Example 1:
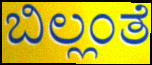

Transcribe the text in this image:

ಬಿಲ್ಲಂತೆ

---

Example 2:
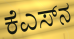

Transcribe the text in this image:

ಕೆಎಸ್‌ನ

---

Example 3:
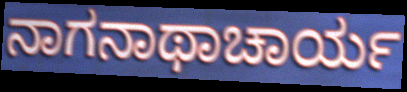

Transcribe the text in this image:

ನಾಗನಾಥಾಚಾರ್ಯ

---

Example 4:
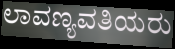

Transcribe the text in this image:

ಲಾವಣ್ಯವತಿಯರು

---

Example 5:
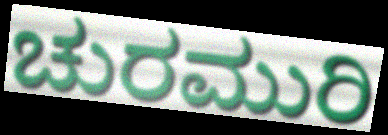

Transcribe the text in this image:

ಚುರಮುರಿ